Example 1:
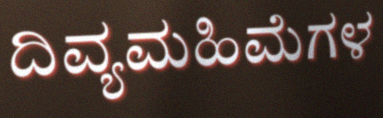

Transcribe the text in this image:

ದಿವ್ಯಮಹಿಮೆಗಳ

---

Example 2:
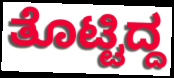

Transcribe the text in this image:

ತೊಟ್ಟಿದ್ದ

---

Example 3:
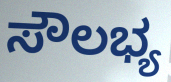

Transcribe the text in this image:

ಸೌಲಭ್ಯ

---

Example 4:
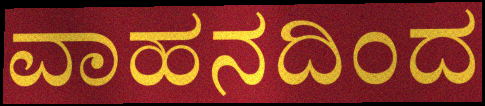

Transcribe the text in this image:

ವಾಹನದಿಂದ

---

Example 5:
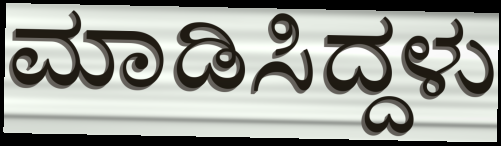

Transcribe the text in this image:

ಮಾಡಿಸಿದ್ದಳು